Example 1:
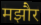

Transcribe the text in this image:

मझौर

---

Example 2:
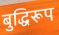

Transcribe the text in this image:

बुद्धिरूप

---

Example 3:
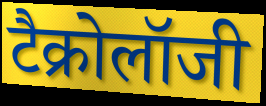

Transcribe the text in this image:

टैक्रोलॉजी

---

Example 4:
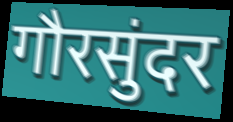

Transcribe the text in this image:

गौरसुंदर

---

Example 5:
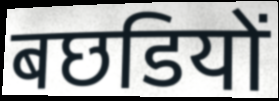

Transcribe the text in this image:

बछडियों